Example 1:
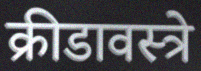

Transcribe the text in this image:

क्रीडावस्त्रे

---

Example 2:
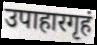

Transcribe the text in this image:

उपाहारगृहं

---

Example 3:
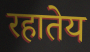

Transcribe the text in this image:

रहातेय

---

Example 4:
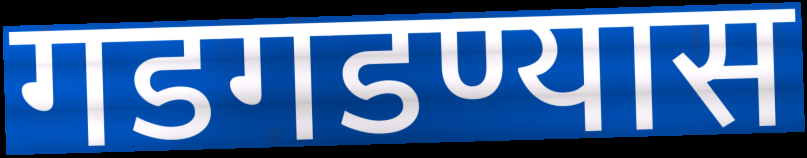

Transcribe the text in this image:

गडगडण्यास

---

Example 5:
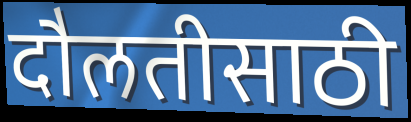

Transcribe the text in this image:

दौलतीसाठी